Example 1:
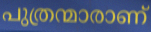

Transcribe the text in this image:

പുത്രന്മാരാണ്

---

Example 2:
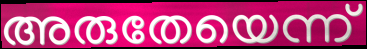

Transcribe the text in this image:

അരുതേയെന്ന്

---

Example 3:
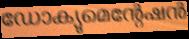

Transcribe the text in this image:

ഡോക്യുമെന്റേഷൻ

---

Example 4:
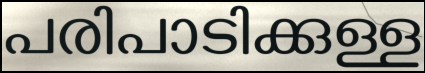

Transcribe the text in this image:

പരിപാടിക്കുള്ള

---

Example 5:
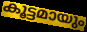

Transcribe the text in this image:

കൂട്ടമായും